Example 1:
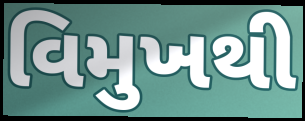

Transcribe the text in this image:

વિમુખથી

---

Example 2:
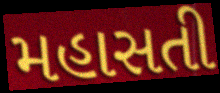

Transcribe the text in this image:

મહાસતી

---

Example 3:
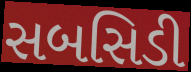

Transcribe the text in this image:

સબસિડી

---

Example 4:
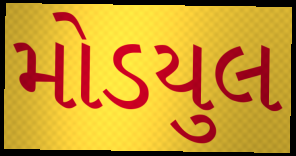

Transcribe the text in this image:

મોડયુલ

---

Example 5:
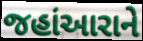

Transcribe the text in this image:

જહાંઆરાને